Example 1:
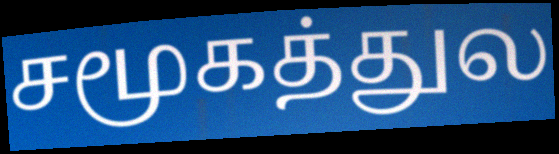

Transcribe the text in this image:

சமூகத்துல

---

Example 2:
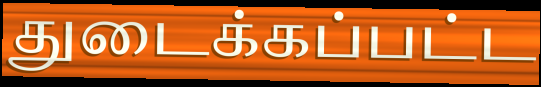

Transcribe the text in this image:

துடைக்கப்பட்ட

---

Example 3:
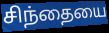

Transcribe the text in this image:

சிந்தையை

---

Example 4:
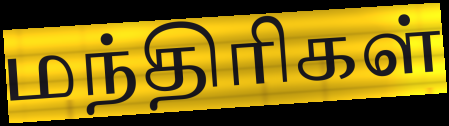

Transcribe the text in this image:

மந்திரிகள்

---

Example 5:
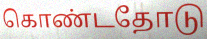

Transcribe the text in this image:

கொண்டதோடு